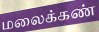
மலைக்கண்